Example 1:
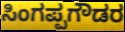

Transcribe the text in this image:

ಸಿಂಗಪ್ಪಗೌಡರ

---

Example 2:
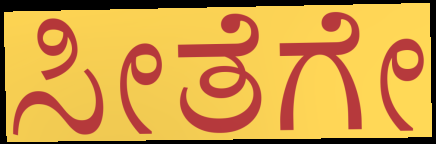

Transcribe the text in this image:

ಸೀತೆಗೇ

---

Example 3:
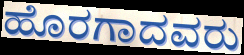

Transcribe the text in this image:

ಹೊರಗಾದವರು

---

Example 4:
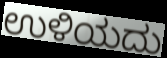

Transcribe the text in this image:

ಉಳಿಯದು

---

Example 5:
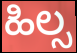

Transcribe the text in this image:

ಹಿಲ್ಸ